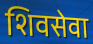
शिवसेवा